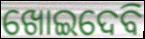
ଖୋଇଦେବି